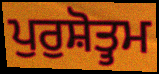
ਪੁਰੁਸ਼ੋਤ੍ਤਮ